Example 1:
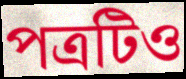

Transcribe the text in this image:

পত্রটিও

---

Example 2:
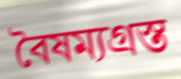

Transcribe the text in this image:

বৈষম্যগ্রস্ত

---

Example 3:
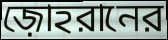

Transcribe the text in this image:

জ়োহরানের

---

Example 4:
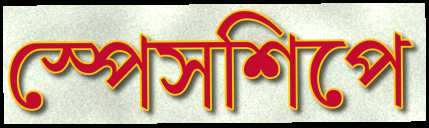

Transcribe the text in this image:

স্পেসশিপে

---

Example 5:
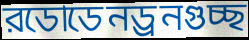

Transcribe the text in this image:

রডোডেনড্রনগুচ্ছ